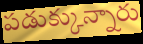
పడుక్కున్నారు